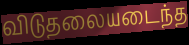
விடுதலையடைந்த